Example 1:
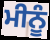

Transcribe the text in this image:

ਮੀਨੂੰ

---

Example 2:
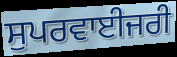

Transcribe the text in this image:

ਸੁਪਰਵਾਈਜਰੀ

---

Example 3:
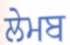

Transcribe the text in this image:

ਲੇਮਬ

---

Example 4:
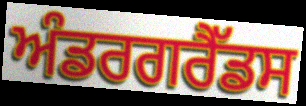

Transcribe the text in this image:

ਅੰਡਰਗਰੈੱਡਸ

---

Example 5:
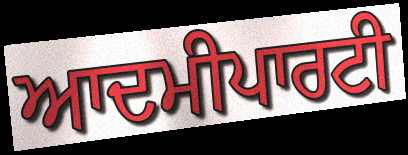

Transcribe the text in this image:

ਆਦਮੀਪਾਰਟੀ